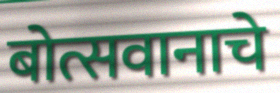
बोत्सवानाचे